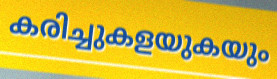
കരിച്ചുകളയുകയും